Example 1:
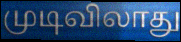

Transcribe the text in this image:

முடிவிலாது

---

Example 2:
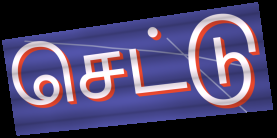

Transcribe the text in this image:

செட்டு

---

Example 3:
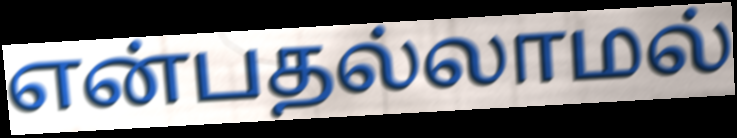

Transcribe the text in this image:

என்பதல்லாமல்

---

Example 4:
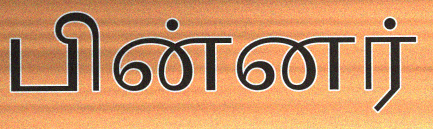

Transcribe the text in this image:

பின்னர்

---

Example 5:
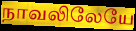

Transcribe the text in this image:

நாவலிலேயே